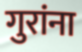
गुरांना